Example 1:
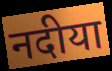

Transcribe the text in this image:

नदीया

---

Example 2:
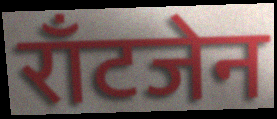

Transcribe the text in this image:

राँटजेन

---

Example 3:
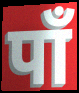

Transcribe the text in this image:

पाँ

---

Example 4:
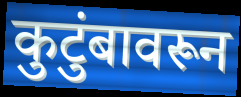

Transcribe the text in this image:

कुटुंबावरून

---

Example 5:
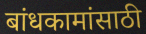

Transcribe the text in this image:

बांधकामांसाठी